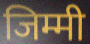
जिम्मी